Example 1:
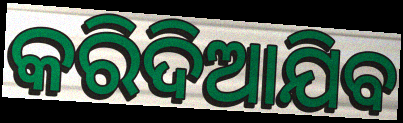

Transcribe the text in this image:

କରିଦିଆଯିବ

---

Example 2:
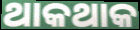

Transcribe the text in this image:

ଥାକଥାକ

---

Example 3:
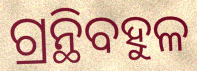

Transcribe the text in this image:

ଗ୍ରନ୍ଥିବହୁଳ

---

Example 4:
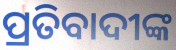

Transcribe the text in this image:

ପ୍ରତିବାଦୀଙ୍କ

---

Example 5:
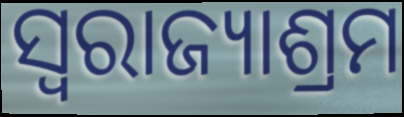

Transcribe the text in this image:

ସ୍ୱରାଜ୍ୟାଶ୍ରମ